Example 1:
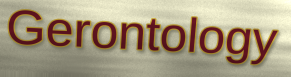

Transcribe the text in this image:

Gerontology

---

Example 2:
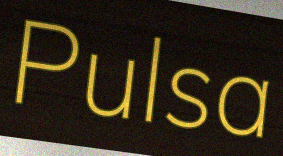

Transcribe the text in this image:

Pulsa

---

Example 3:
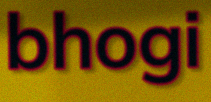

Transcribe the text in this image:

bhogi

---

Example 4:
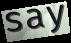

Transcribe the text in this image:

say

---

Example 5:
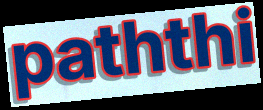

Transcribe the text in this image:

paththi